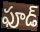
ఫూడ్